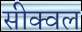
सीक्वल